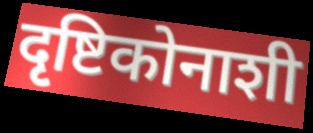
दृष्टिकोनाशी